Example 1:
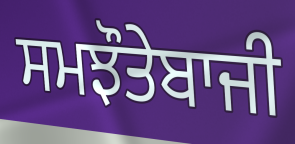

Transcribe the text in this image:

ਸਮਝੌਤੇਬਾਜੀ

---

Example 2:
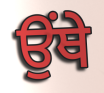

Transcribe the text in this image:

ਉੰਥੇ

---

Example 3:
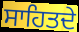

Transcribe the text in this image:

ਸਾਹਿਤਦੇ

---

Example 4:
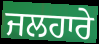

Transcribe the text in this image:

ਜਲਹਾਰੇ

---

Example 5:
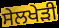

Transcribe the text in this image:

ਸੇਲਖੇੜੀ